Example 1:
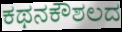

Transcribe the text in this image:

ಕಥನಕೌಶಲದ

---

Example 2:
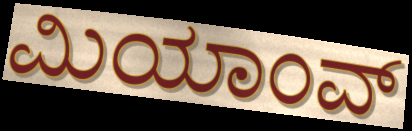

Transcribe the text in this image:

ಮಿಯಾಂವ್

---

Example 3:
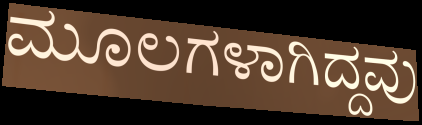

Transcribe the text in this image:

ಮೂಲಗಳಾಗಿದ್ದವು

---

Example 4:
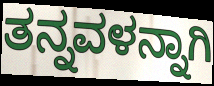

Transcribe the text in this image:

ತನ್ನವಳನ್ನಾಗಿ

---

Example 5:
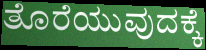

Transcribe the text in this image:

ತೊರೆಯುವುದಕ್ಕೆ